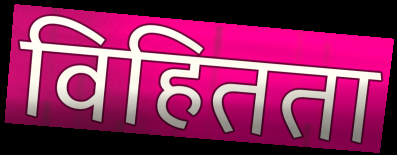
विहितता